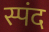
स्पंद